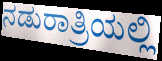
ನಡುರಾತ್ರಿಯಲ್ಲಿ